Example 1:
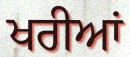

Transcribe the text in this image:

ਖਰੀਆਂ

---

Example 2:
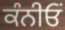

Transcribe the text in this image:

ਕੰਨੀਓਂ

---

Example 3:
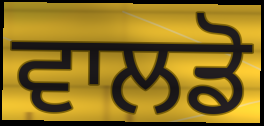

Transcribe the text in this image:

ਵਾਲਡੋ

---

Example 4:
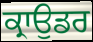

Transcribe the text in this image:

ਕ੍ਰਾਉਡਰ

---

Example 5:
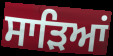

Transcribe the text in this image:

ਸਾੜਿਆਂ